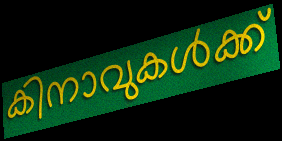
കിനാവുകൾക്ക്